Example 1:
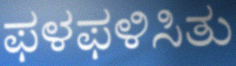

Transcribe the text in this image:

ಫಳಫಳಿಸಿತು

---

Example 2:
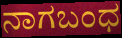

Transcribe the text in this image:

ನಾಗಬಂಧ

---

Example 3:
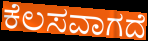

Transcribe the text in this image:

ಕೆಲಸವಾಗದೆ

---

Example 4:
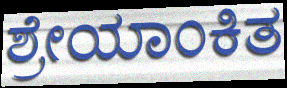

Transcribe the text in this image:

ಶ್ರೇಯಾಂಕಿತ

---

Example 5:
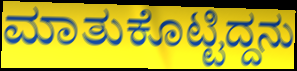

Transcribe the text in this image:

ಮಾತುಕೊಟ್ಟಿದ್ದನು